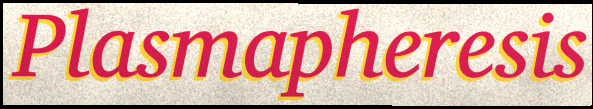
Plasmapheresis